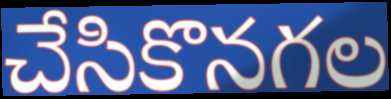
చేసికొనగల